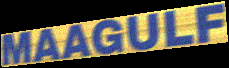
MAAGULF